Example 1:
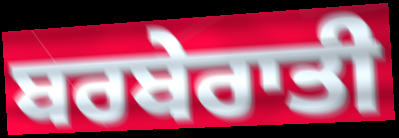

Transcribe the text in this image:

ਬਰਬੇਰਾਤੀ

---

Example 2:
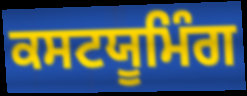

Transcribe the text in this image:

ਕਸਟਯੂਮਿੰਗ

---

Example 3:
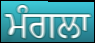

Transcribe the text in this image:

ਮੰਗਲਾ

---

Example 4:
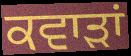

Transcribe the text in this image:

ਕਵਾੜਾਂ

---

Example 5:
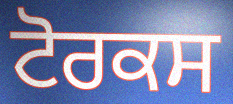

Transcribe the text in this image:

ਟੋਰਕਸ